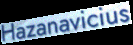
Hazanavicius